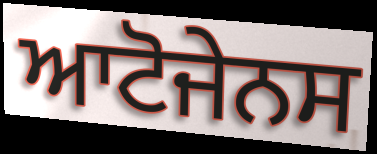
ਆਟੋਜੇਨਸ